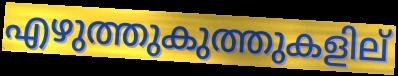
എഴുത്തുകുത്തുകളില്